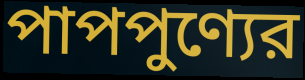
পাপপুণ্যের